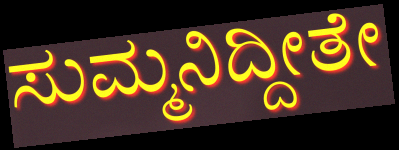
ಸುಮ್ಮನಿದ್ದೀತೇ